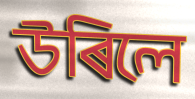
উৰিলে